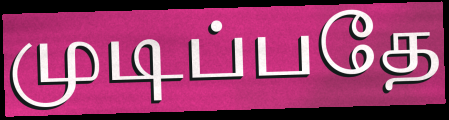
முடிப்பதே